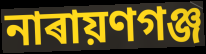
নাৰায়ণগঞ্জ